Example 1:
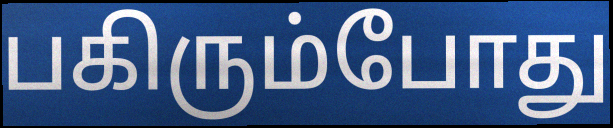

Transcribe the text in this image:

பகிரும்போது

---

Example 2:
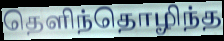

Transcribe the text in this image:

தெளிந்தொழிந்த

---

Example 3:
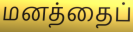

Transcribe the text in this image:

மனத்தைப்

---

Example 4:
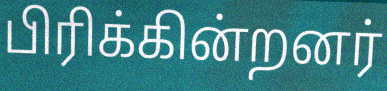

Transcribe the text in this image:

பிரிக்கின்றனர்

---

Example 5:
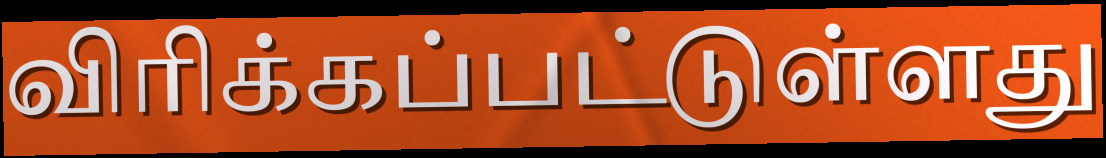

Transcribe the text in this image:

விரிக்கப்பட்டுள்ளது